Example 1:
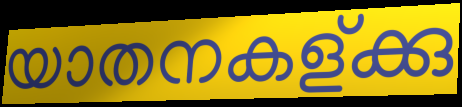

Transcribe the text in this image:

യാതനകള്ക്കു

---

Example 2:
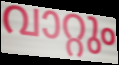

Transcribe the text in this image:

വാറ്റും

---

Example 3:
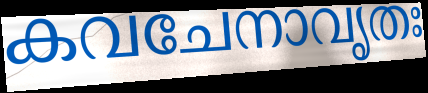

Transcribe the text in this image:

കവചേനാവൃതഃ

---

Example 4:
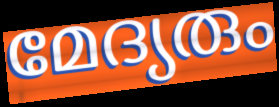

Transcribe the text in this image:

മേദ്യരും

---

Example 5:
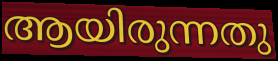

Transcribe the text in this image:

ആയിരുന്നതു